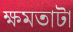
ক্ষমতাটা